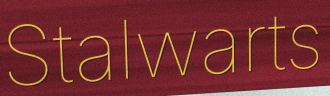
Stalwarts